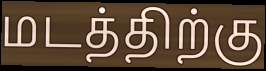
மடத்திற்கு